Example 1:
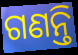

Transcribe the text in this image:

ଗଣନ୍ତି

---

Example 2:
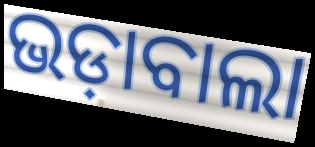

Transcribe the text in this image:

ଭଡ଼ାବାଲା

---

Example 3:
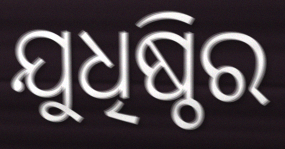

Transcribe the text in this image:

ଯୁଧିଷ୍ଠିର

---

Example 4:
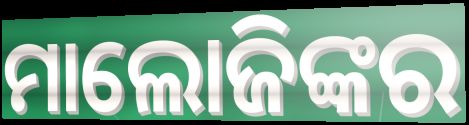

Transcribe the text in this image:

ମାଲୋଜିଙ୍କର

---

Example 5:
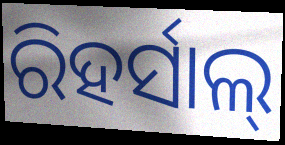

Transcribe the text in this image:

ରିହର୍ସାଲ୍